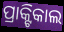
ପ୍ରାକ୍ଟିକାଲ